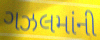
ગઝલમાંની